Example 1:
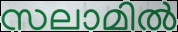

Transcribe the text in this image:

സലാമിൽ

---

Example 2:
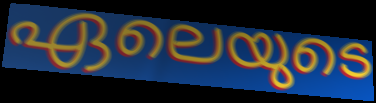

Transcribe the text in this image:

ഏലെയുടെ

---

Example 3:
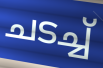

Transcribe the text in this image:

ചടച്ച്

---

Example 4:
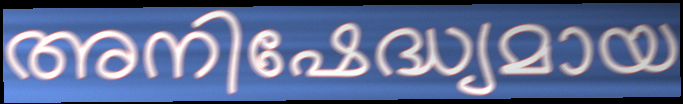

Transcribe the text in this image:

അനിഷേദ്ധ്യമായ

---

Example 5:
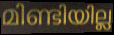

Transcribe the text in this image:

മിണ്ടിയില്ല